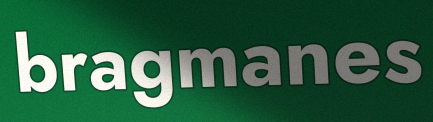
bragmanes